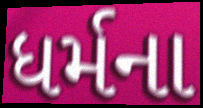
ધર્મના